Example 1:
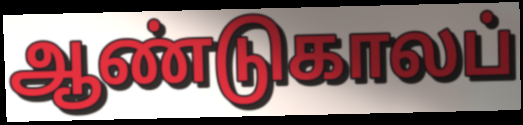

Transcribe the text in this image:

ஆண்டுகாலப்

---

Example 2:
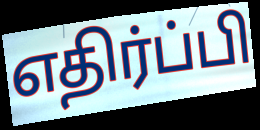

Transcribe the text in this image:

எதிர்ப்பி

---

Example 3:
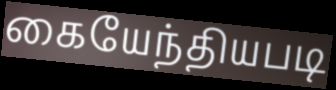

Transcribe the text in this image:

கையேந்தியபடி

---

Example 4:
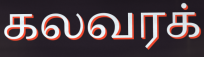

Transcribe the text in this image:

கலவரக்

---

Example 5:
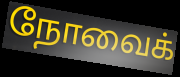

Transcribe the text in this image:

நோவைக்